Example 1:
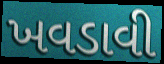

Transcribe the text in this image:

ખવડાવી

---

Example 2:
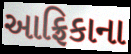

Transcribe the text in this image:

આફ્રિકાના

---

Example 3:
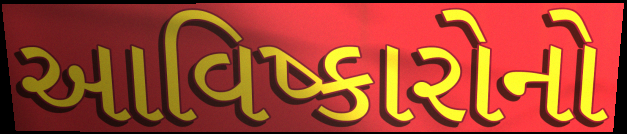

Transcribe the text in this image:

આવિષ્કારોનો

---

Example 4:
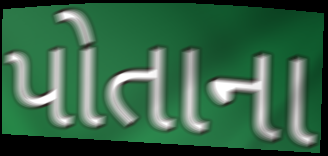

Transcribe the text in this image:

પોતાના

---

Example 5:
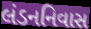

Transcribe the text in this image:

લંડનનિવાસ